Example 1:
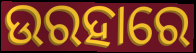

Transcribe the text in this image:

ଉରହାରେ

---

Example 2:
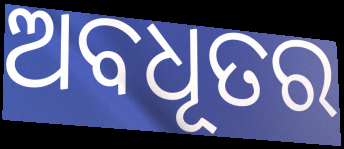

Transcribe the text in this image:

ଅବଧୂତର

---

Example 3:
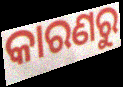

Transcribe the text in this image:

କାରଣରୁ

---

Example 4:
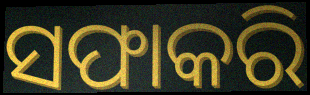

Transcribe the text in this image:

ସଫାକରି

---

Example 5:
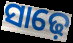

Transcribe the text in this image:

ସାଢ଼େ